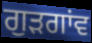
ਗੁੜਗਾਂਵ